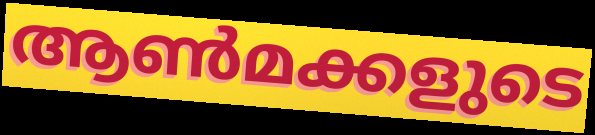
ആൺമക്കളുടെ